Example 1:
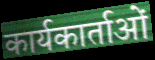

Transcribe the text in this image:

कार्यकार्ताओं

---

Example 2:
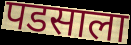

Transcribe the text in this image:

पडसाला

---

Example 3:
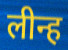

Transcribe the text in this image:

लीन्ह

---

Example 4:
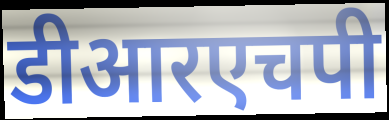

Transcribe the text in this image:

डीआरएचपी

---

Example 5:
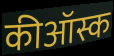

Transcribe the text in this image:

कीऑस्क